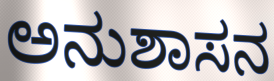
ಅನುಶಾಸನ